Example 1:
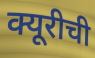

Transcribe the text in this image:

क्यूरीची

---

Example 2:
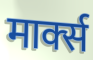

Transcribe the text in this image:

मार्क्‍स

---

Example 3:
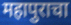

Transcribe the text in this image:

महापुराचा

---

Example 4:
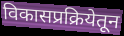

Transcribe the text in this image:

विकासप्रक्रियेतून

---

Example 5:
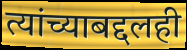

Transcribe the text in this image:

त्यांच्याबद्दलही